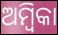
ଅମ୍ବିକା